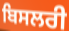
ਬਿਸਲਰੀ